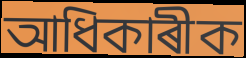
আধিকাৰীক